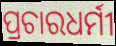
ପ୍ରଚାରଧର୍ମୀ